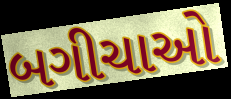
બગીચાઓ